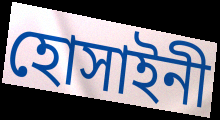
হোসাইনী